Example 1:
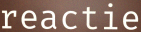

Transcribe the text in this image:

reactie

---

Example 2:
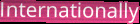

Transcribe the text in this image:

Internationally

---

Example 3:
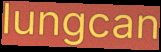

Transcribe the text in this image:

lungcan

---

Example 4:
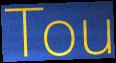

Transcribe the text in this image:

Tou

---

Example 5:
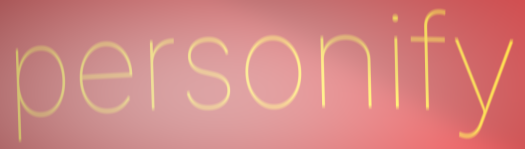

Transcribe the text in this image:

personify